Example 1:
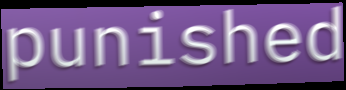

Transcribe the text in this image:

punished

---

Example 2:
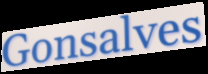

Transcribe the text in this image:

Gonsalves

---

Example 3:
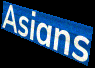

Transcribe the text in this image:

Asians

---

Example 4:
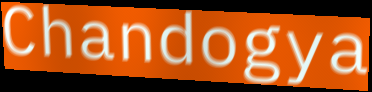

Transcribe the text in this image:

Chandogya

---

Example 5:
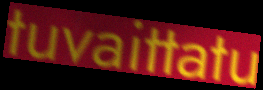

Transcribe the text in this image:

tuvaittatu